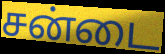
சன்டை